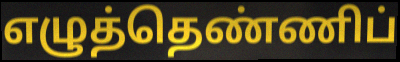
எழுத்தெண்ணிப்